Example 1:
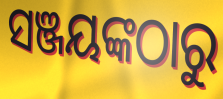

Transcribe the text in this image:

ସଞ୍ଜୟଙ୍କଠାରୁ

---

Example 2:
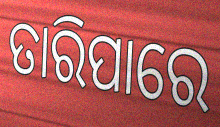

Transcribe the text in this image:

ତାରିପାରେ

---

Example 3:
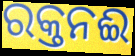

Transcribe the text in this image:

ରକ୍ତନଈ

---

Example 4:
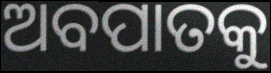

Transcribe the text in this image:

ଅବପାତକୁ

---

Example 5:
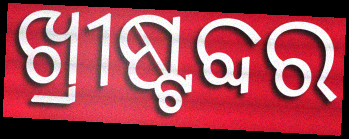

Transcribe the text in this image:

ଖ୍ରୀଷ୍ଟବ୍ଦର